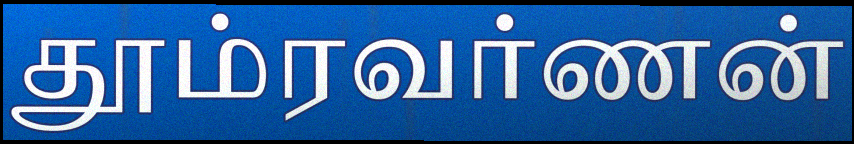
தூம்ரவர்ணன்